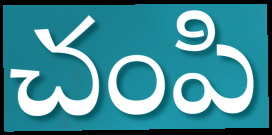
చంపి